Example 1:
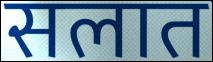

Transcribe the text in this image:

सलात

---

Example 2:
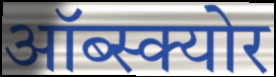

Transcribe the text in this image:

ऑब्स्क्योर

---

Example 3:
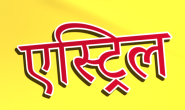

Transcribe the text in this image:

एस्ट्रिल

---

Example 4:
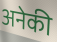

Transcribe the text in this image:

अनेकी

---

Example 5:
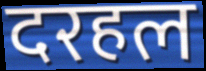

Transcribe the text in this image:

दरहल